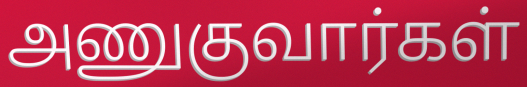
அணுகுவார்கள்